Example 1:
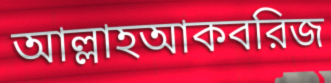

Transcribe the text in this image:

আল্লাহআকবরিজ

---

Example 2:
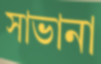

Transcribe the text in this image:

সাভানা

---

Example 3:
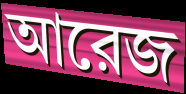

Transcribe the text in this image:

আরেজ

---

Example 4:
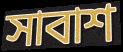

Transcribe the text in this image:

সাবাশ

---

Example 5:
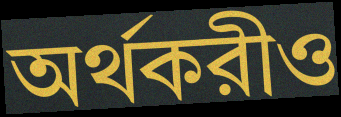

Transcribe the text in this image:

অর্থকরীও